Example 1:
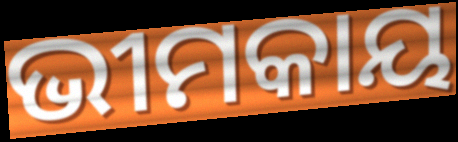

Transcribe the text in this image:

ଭୀମକାୟ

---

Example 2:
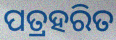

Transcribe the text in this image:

ପତ୍ରହରିତ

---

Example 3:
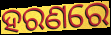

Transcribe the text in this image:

ହରଣରେ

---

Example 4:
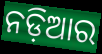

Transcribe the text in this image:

ନଡ଼ିଆର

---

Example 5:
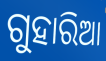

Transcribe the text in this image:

ଗୁହାରିଆ